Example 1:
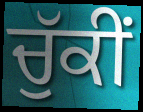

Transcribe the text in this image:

ਚੁੱਕੀਂ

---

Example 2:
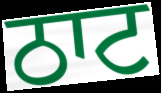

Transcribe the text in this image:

ਠਾਟ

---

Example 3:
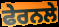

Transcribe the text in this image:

ਫੇਰਨਲੇ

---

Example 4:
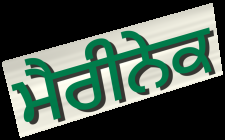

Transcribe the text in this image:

ਮੈਰੀਨੇਕ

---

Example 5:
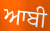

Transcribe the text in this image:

ਆਬੀ